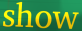
show